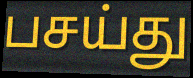
பசய்து